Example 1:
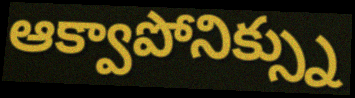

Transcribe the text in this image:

ఆక్వాపోనిక్స్ను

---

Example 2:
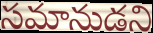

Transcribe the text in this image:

సమానుడని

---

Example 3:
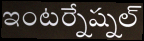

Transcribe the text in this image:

ఇంటర్నేష్నల్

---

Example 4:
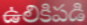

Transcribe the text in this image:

ఉలికిపడి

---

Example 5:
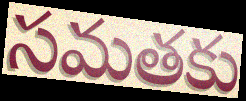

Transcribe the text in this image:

సమతకు